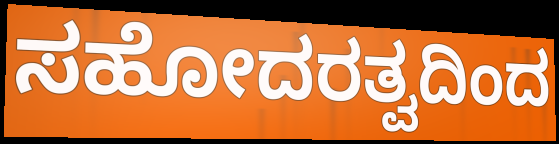
ಸಹೋದರತ್ವದಿಂದ